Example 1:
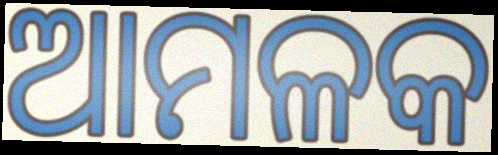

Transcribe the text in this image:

ଆମଳକ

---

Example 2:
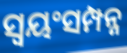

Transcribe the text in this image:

ସ୍ବୟଂସମ୍ପନ୍ନ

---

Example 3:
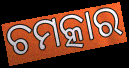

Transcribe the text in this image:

ଚମତ୍କାର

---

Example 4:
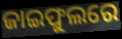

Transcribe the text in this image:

ଜାଇଫୁଲରେ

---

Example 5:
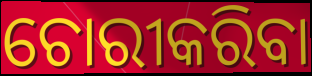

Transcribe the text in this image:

ଚୋରୀକରିବା